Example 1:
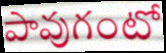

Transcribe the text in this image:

పావుగంటో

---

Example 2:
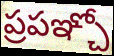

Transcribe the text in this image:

ప్రపఞ్చో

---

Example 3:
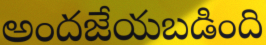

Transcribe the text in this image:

అందజేయబడింది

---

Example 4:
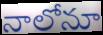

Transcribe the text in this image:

నాలోనూ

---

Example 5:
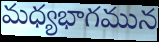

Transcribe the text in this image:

మధ్యభాగమున